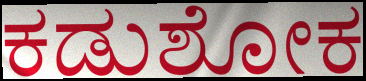
ಕಡುಶೋಕ